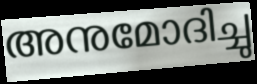
അനുമോദിച്ചു